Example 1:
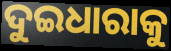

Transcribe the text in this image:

ଦୁଇଧାରାକୁ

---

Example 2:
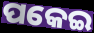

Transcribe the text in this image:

ପକେଇ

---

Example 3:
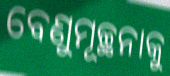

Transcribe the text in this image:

ବେଣୁମୂଚ୍ଛନାକୁ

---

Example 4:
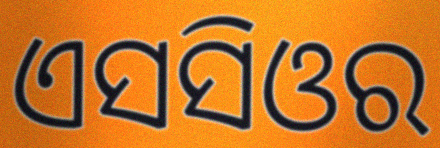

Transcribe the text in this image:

ଏସସିଓର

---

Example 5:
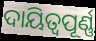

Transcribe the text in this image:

ଦାୟିତ୍ୱପୂର୍ଣ୍ଣ